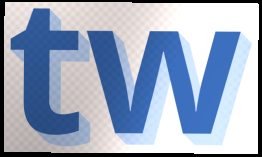
tw